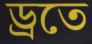
ড্রতে